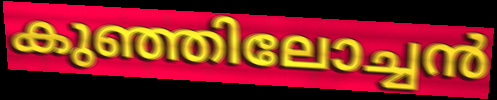
കുഞ്ഞിലോച്ചൻ